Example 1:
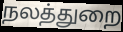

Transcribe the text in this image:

நலத்துறை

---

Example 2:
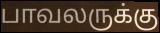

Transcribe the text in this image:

பாவலருக்கு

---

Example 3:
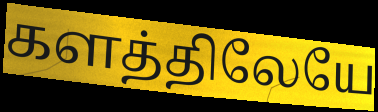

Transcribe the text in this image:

களத்திலேயே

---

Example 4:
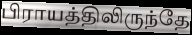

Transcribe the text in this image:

பிராயத்திலிருந்தே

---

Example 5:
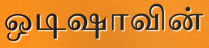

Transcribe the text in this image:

ஒடிஷாவின்